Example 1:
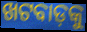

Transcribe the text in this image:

ଖଟବାଡ଼କୁ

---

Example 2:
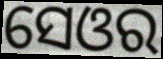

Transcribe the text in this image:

ସେଓର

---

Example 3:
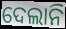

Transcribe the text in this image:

ଦେଲାନି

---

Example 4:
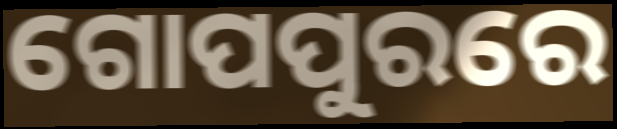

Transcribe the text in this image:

ଗୋପପୁରରେ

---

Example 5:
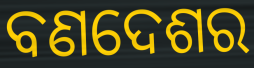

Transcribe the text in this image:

ବଣଦେଶର